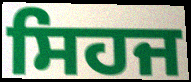
ਸਿਹਜ